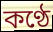
কণ্ঠে